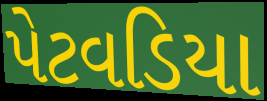
પેટવડિયા